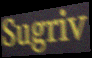
Sugriv